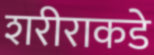
शरीराकडे